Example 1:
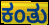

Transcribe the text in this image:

ಕಂತು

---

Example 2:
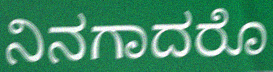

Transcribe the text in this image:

ನಿನಗಾದರೊ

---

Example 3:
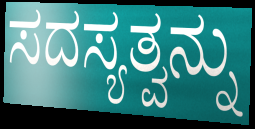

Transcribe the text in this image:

ಸದಸ್ಯತ್ವನ್ನು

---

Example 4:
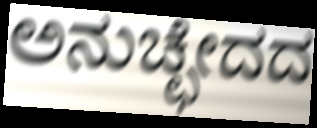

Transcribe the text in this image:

ಅನುಚ್ಛೇದದ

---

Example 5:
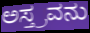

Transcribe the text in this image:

ಅಸ್ತ್ರವನು